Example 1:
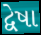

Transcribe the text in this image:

દ્વેષા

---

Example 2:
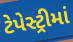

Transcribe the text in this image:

ટેપેસ્ટ્રીમાં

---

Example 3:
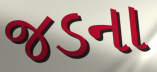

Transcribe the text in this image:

જડના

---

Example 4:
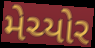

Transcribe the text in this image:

મેચ્યોર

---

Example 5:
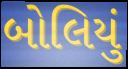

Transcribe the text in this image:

બોલિયું